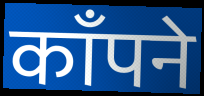
कॉँपने